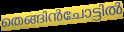
തെങ്ങിൻചോട്ടിൽ